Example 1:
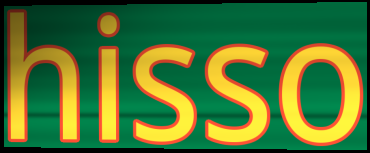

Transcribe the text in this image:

hisso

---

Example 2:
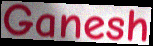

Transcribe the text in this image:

Ganesh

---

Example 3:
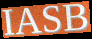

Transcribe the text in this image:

IASB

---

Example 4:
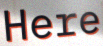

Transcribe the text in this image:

Here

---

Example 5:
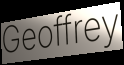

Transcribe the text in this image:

Geoffrey